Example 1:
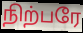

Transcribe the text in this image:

நிற்பரே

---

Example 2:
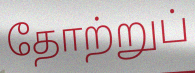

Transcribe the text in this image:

தோற்றுப்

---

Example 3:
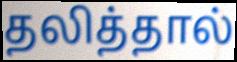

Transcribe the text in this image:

தலித்தால்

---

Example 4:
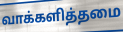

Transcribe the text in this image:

வாக்களித்தமை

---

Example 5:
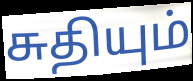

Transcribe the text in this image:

சுதியும்